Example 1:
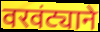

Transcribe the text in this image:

वरवंट्याने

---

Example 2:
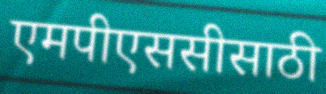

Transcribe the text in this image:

एमपीएससीसाठी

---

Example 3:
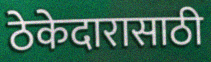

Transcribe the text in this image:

ठेकेदारासाठी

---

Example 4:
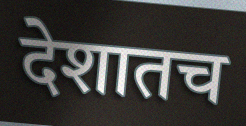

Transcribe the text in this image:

देशातच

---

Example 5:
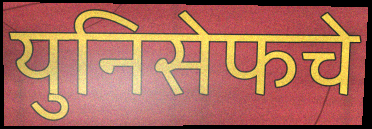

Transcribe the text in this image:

युनिसेफचे